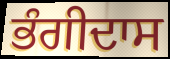
ਭੰਗੀਦਾਸ